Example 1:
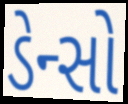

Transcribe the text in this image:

ડેન્સો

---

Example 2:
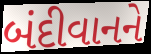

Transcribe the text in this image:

બંદીવાનને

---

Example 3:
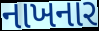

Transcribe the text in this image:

નાખનાર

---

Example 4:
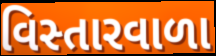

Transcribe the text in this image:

વિસ્તારવાળા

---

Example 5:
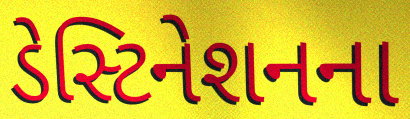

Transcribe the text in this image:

ડેસ્ટિનેશનના